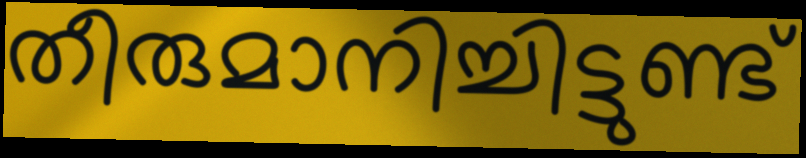
തീരുമാനിച്ചിട്ടുണ്ട്